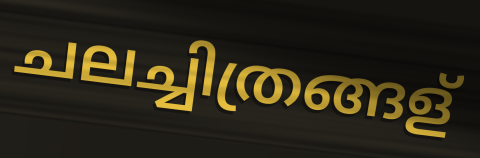
ചലച്ചിത്രങ്ങള്